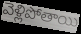
వెళ్లిపోతాయి